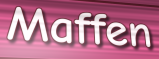
Maffen